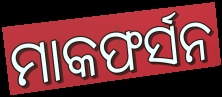
ମାକଫର୍ସନ